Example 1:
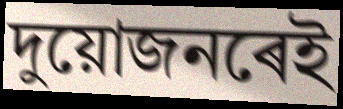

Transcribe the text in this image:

দুয়োজনৰেই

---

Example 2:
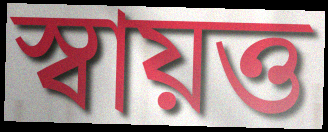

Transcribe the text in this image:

স্বায়ত্ত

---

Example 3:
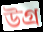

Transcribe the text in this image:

উগ্ৰ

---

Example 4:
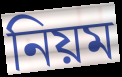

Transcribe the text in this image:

নিয়ম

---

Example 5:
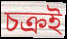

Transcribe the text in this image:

চক্ৰই